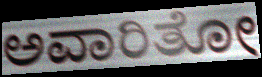
ಅವಾರಿತೋ